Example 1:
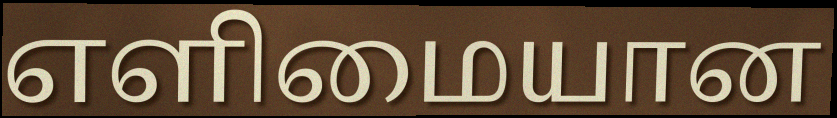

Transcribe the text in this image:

எளிமையான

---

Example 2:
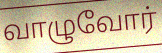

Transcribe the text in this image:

வாழுவோர்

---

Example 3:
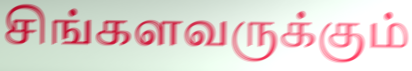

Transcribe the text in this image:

சிங்களவருக்கும்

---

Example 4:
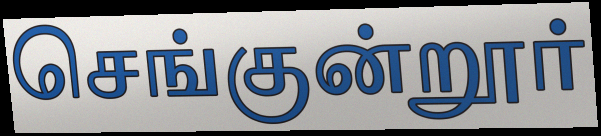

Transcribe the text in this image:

செங்குன்றூர்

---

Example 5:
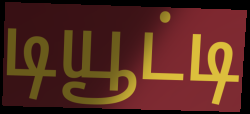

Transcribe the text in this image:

டியூட்டி